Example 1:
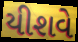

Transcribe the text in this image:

યીશવે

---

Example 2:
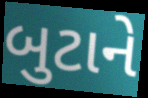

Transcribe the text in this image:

બુટાને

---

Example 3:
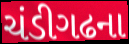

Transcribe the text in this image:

ચંડીગઢના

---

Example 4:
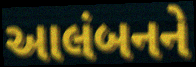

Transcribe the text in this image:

આલંબનને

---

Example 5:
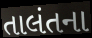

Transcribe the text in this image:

તાલંતના